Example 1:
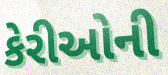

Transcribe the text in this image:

કેરીઓની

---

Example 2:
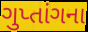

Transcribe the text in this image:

ગુપ્તાંગના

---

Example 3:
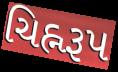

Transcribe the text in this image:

ચિહ્નરૂપ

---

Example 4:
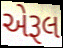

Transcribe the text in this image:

એરૂલ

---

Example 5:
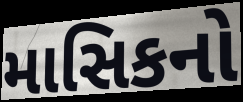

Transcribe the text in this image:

માસિકનો